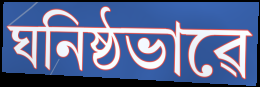
ঘনিষ্ঠভাৱে